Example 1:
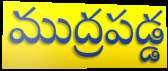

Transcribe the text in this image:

ముద్రపడ్డ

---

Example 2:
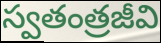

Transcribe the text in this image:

స్వతంత్రజీవి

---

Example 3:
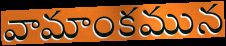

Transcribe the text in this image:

వామాంకమున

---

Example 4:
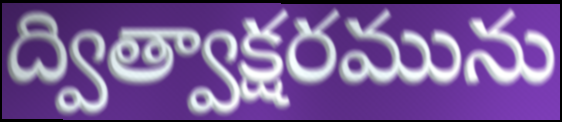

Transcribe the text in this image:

ద్విత్వాక్షరమును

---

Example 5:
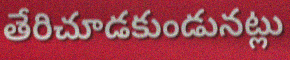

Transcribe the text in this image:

తేరిచూడకుండునట్లు